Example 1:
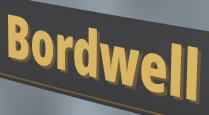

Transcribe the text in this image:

Bordwell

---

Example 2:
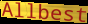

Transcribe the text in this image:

Allbest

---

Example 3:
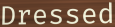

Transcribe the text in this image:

Dressed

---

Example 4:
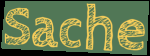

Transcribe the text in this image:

Sache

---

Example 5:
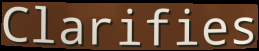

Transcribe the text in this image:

Clarifies